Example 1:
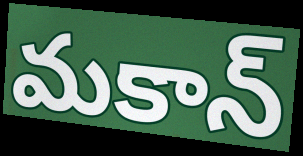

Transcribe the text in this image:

మకాన్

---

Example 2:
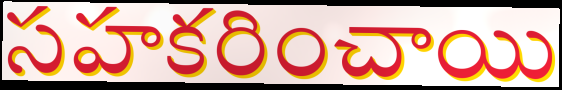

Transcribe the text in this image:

సహకరించాయి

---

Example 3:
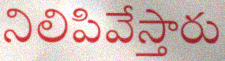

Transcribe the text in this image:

నిలిపివేస్తారు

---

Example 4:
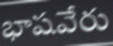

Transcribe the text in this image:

భాషవేరు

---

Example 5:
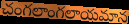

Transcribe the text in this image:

చంగలాంగలాయమాన